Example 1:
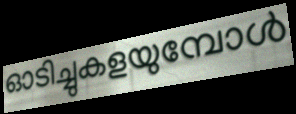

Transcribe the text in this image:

ഓടിച്ചുകളയുമ്പോൾ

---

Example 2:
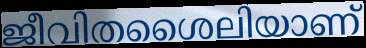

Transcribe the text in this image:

ജീവിതശൈലിയാണ്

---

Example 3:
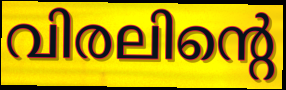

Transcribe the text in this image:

വിരലിന്റെ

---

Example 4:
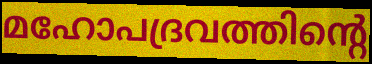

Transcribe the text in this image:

മഹോപദ്രവത്തിന്റെ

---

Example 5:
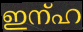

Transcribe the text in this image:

ഇന്ഹ